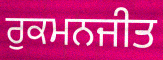
ਰੁਕਮਨਜੀਤ